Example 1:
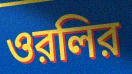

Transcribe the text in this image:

ওরলির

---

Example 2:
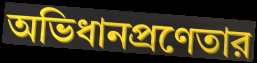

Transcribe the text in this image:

অভিধানপ্রণেতার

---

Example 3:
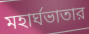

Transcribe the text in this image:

মহার্ঘভাতার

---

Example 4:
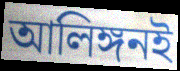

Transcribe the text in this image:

আলিঙ্গনই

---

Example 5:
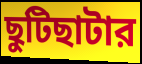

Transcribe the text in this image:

ছুটিছাটার